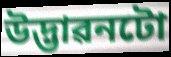
উদ্ভাৱনটো